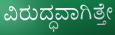
ವಿರುದ್ಧವಾಗಿತ್ತೇ